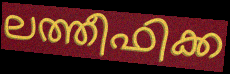
ലത്തീഫിക്ക